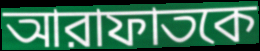
আরাফাতকে